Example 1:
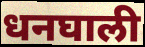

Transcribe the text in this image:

धनघाली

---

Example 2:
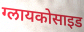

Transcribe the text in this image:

ग्लायकोसाइड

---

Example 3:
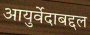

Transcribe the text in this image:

आयुर्वेदाबद्दल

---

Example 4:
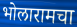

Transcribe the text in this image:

भोलारामचा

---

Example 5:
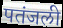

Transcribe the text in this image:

पतंजली